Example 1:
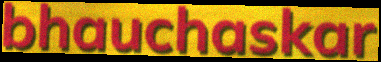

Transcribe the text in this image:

bhauchaskar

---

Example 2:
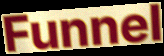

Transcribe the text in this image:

Funnel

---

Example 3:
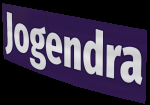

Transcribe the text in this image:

Jogendra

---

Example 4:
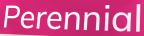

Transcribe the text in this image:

Perennial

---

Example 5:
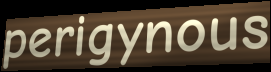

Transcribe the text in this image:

perigynous